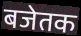
बजेतक